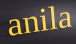
anila